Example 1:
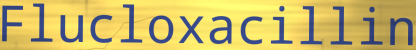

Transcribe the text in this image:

Flucloxacillin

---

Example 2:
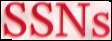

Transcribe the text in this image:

SSNs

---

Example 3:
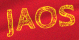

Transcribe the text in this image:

JAOS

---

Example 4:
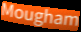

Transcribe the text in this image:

Mougham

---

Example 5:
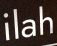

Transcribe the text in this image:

ilah